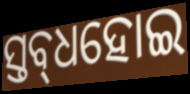
ସ୍ତବ୍‌ଧହୋଇ